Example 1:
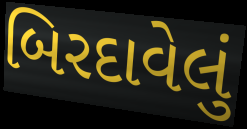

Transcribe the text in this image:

બિરદાવેલું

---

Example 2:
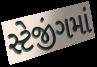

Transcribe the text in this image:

સ્ટેજીંગમાં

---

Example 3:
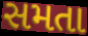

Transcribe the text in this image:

સમતા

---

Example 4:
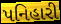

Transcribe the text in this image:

પનિહારી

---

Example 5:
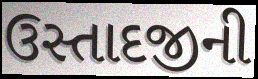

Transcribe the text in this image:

ઉસ્તાદજીની